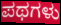
ಪಥಗಳು